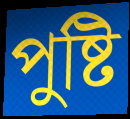
পুষ্টি